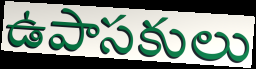
ఉపాసకులు